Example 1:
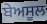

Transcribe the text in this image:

ਬੇਅਸੂਲ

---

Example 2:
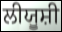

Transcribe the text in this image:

ਲੀਯੂਸ਼ੀ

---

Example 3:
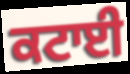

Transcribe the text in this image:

ਕਟਾਈ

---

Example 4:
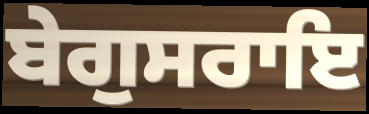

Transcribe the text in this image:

ਬੇਗੁਸਰਾਇ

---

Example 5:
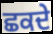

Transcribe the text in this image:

ਛਕਦੇ